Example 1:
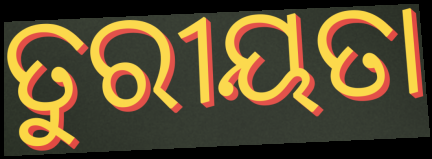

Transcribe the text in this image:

ତୁରୀୟତା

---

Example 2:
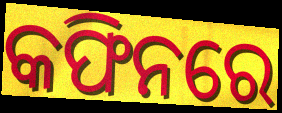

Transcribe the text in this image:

କଫିନରେ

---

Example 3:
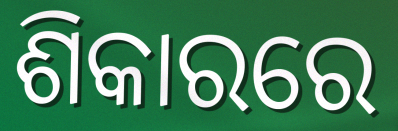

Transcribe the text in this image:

ଶିକାରରେ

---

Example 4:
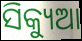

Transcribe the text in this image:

ସିକ୍ୟୁଆ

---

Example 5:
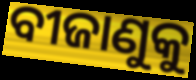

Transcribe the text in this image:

ବୀଜାଣୁକୁ